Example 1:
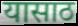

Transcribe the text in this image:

यासाठ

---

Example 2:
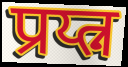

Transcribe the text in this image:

प्रय्त्न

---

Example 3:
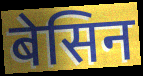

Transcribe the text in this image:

बेसिन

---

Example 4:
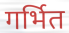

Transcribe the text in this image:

गर्भित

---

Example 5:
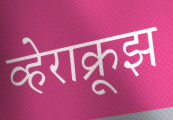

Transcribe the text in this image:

व्हेराक्रूझ